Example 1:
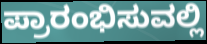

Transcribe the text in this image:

ಪ್ರಾರಂಭಿಸುವಲ್ಲಿ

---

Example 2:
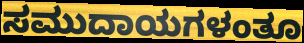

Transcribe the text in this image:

ಸಮುದಾಯಗಳಂತೂ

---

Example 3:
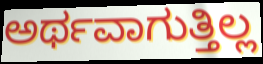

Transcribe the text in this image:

ಅರ್ಥವಾಗುತ್ತಿಲ್ಲ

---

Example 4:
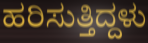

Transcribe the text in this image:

ಹರಿಸುತ್ತಿದ್ದಳು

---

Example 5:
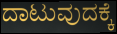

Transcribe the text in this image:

ದಾಟುವುದಕ್ಕೆ